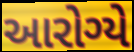
આરોગ્યે